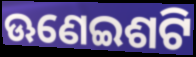
ଊଣେଇଶଟି